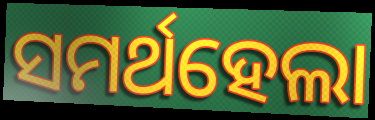
ସମର୍ଥହେଲା